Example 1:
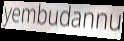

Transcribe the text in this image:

yembudannu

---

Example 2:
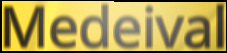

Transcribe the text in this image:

Medeival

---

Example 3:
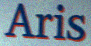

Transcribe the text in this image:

Aris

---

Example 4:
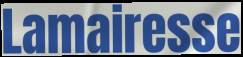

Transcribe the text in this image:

Lamairesse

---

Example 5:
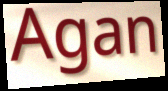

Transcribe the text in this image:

Agan